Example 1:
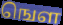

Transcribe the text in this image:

ஙௌ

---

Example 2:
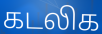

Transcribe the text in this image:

கடலிக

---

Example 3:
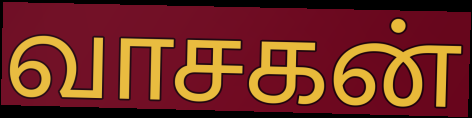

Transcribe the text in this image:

வாசகன்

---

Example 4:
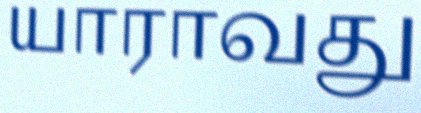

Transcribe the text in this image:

யாராவது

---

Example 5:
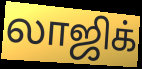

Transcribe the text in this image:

லாஜிக்